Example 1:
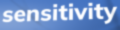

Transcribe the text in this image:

sensitivity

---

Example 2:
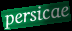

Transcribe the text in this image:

persicae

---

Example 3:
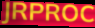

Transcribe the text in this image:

JRPROC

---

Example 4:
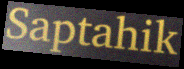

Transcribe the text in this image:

Saptahik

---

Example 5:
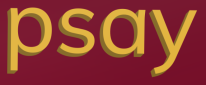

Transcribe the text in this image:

psay